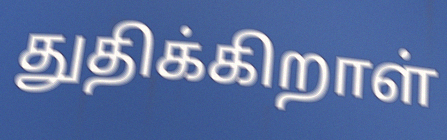
துதிக்கிறாள்